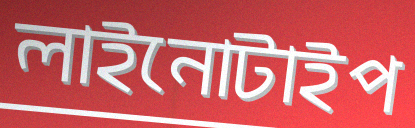
লাইনোটাইপ